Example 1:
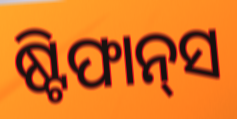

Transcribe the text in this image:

ଷ୍ଟିଫାନ୍‍ସ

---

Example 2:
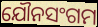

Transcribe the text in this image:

ଯୌନସଂଗମ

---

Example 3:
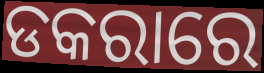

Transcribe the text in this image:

ଡକରାରେ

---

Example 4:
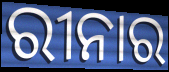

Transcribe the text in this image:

ରୀନାର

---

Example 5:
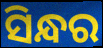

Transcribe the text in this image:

ସିନ୍ଧର